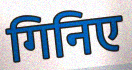
गिनिए